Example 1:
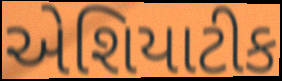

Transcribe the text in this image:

એશિયાટીક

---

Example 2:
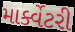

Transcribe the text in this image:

માર્ક્વેટરી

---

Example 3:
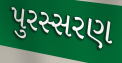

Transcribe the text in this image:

પુરસ્સરણ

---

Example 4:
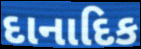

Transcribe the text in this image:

દાનાદિક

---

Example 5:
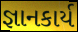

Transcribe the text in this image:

જ્ઞાનકાર્ય